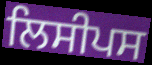
ਲਿਸੀਪਸ